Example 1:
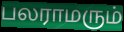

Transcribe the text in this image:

பலராமரும்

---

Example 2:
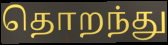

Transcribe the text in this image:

தொறந்து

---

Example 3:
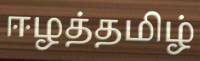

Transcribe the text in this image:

ஈழத்தமிழ்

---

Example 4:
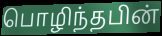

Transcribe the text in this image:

பொழிந்தபின்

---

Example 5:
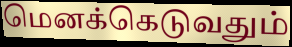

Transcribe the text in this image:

மெனக்கெடுவதும்